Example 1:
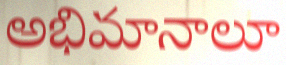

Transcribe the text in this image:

అభిమానాలూ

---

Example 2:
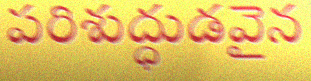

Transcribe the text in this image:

పరిశుద్ధుడవైన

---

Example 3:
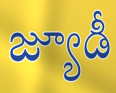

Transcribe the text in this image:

జ్యూడీ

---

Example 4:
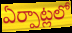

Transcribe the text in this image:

ఏర్పాట్లలో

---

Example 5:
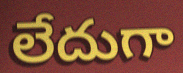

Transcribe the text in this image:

లేదుగా